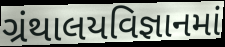
ગ્રંથાલયવિજ્ઞાનમાં